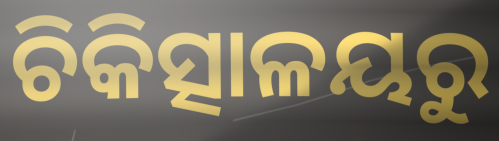
ଚିକିତ୍ସାଳୟରୁ